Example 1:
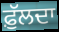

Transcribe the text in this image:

ਫ਼ੁੱਲਦਾ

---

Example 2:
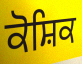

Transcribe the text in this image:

ਕੋਸ਼ਿਕ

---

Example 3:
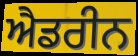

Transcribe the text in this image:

ਐਡਰੀਨ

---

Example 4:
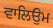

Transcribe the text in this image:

ਵਾਲਿਉਮ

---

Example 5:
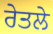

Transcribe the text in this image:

ਰੇਤਲੇ